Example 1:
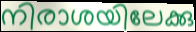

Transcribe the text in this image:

നിരാശയിലേക്കു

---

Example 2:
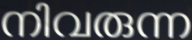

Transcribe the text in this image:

നിവരുന്ന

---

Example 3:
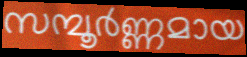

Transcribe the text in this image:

സമ്പൂർണ്ണമായ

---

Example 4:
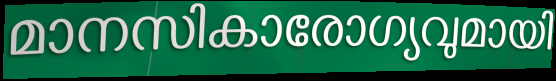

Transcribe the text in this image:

മാനസികാരോഗ്യവുമായി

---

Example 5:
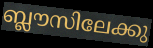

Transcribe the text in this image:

ബ്ലൗസിലേക്കു